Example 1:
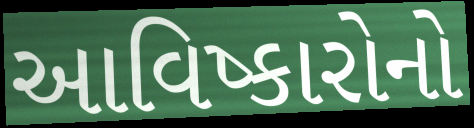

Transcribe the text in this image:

આવિષ્કારોનો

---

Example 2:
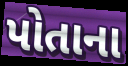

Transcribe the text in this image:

પોતાના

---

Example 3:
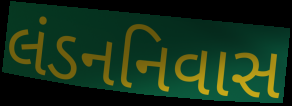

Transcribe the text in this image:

લંડનનિવાસ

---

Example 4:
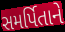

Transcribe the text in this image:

સમર્પિતાને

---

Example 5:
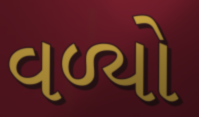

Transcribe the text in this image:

વળ્યો